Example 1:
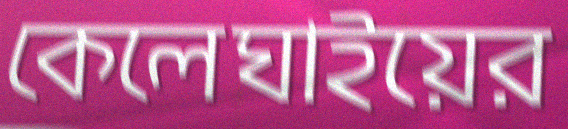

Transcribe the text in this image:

কেলেঘাইয়ের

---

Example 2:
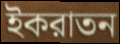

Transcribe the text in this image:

ইকরাতন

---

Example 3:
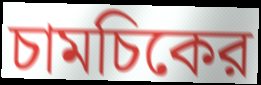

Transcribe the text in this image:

চামচিকের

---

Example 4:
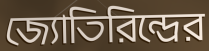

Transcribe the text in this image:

জ্যোতিরিন্দ্রের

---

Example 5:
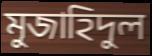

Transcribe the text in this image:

মুজাহিদুল